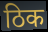
ठिक